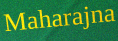
Maharajna